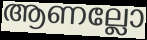
ആണല്ലോ